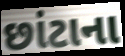
છાંટાના